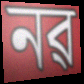
নৱ